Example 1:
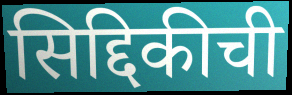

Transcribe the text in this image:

सिद्दिकीची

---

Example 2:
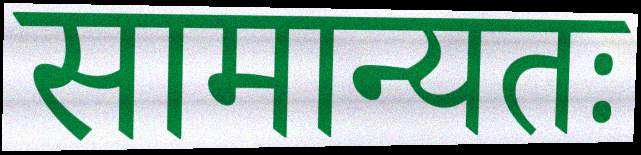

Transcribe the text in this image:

सामान्यतः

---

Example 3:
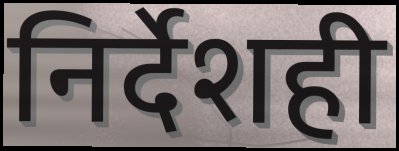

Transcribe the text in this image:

निर्देशही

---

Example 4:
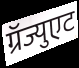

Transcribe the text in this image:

ग्रॅज्युएट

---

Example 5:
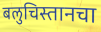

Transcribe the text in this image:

बलुचिस्तानचा